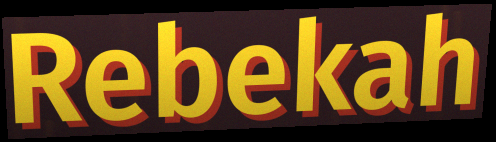
Rebekah